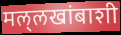
मल्लखांबाशी